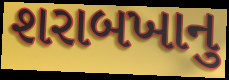
શરાબખાનુ